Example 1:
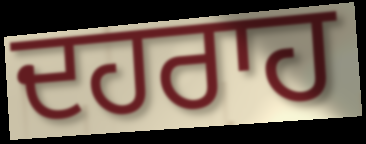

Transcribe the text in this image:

ਦਹਰਾਹ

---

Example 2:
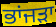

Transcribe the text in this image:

ਭਾਂਜੜਾ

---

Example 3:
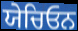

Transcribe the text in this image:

ਯੇਚਿਓਨ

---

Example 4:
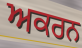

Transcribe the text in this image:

ਅਕਰਨ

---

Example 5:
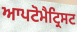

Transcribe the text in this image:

ਆਪਟੋਮੈਟ੍ਰਿਸਟ